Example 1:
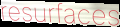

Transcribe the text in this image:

resurfaces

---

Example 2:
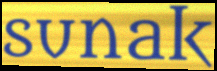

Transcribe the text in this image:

sunak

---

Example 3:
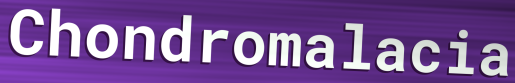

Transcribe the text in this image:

Chondromalacia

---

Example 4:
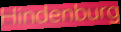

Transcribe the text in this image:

Hindenburg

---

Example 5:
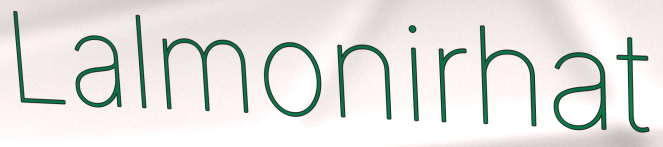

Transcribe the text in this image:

Lalmonirhat